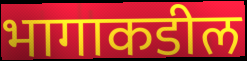
भागाकडील